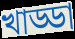
খাড্ডা